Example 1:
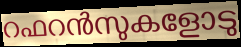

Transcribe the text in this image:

റഫറൻസുകളോടു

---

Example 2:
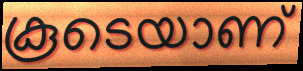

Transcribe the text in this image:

കൂടെയാണ്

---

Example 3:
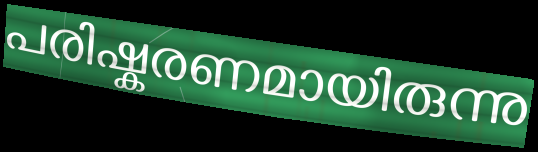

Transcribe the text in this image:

പരിഷ്കരണമായിരുന്നു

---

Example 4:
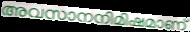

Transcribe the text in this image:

അവസാനനിമിഷമാണ്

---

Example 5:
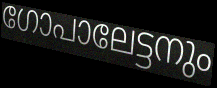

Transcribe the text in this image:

ഗോപാലേട്ടനും